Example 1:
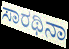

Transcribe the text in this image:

ಸಾರಥಿನಾ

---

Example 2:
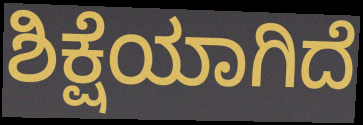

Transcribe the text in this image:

ಶಿಕ್ಷೆಯಾಗಿದೆ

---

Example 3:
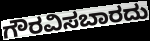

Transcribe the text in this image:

ಗೌರವಿಸಬಾರದು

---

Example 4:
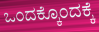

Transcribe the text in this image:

ಒಂದಕ್ಕೊಂದಕ್ಕೆ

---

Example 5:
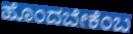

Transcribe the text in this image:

ಹೊಂದಬೇಕೆಂಬ